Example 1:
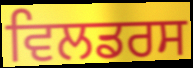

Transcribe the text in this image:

ਵਿਲਡਰਸ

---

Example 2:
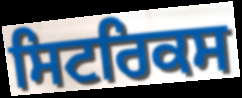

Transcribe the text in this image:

ਸਿਟਰਿਕਸ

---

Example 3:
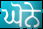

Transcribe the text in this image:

ਘੋਨੇ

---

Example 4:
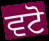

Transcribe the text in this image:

ਵਟੋ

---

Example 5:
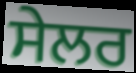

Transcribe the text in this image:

ਸੇਲਰ